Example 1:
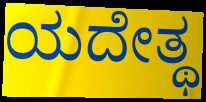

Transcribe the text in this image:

ಯದೇತ್ಥ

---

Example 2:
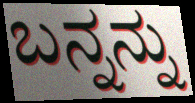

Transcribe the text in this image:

ಬನ್ನನ್ನು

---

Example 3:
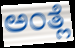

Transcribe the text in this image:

ಅಂತ್ಲೆ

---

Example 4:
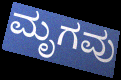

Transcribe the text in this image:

ಮೃಗವು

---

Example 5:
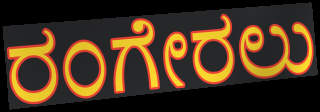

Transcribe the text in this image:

ರಂಗೇರಲು